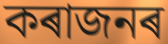
কৰাজনৰ